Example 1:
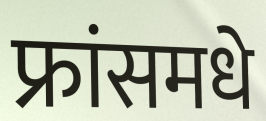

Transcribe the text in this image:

फ्रांसमधे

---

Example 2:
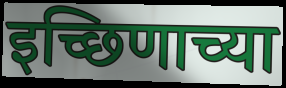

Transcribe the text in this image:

इच्छिणाच्या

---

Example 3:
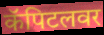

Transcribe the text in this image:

कॅपिटलवर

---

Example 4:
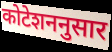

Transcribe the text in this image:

कोटेशननुसार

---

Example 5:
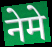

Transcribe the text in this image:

नेमे